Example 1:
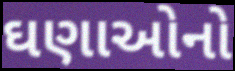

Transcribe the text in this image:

ઘણાઓનો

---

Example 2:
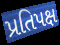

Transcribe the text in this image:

પ્રતિપક્ષ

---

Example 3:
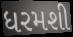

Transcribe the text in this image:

ધરમશી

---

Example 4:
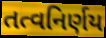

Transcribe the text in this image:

તત્વનિર્ણય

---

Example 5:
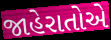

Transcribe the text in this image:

જાહેરાતોએ